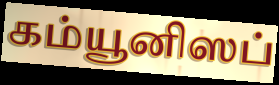
கம்யூனிஸப்